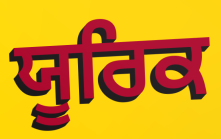
ਯੂਰਿਕ